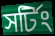
সর্টিং